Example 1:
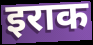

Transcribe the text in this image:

इराक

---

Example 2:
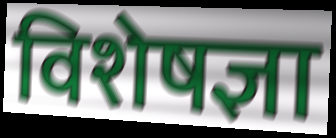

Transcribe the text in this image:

विशेषज्ञा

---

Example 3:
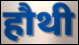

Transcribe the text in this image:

हौथी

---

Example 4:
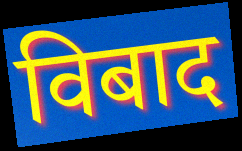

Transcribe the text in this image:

विबाद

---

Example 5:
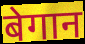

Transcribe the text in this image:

बेगान